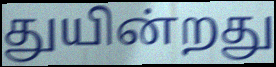
துயின்றது